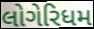
લોગેરિધમ